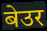
बेउर